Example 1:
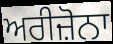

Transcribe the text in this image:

ਅਰੀਜ਼ੋਨਾ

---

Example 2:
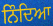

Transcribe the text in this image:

ਨਿੰਦਿਆ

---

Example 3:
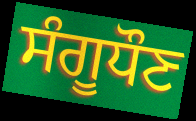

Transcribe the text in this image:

ਸੰਗੂਧੌਣ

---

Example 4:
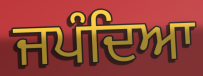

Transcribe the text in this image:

ਜਪੰਦਿਆ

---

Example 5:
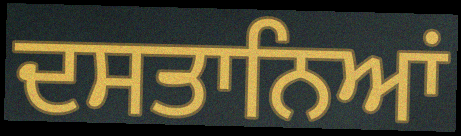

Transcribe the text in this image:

ਦਸਤਾਨਿਆਂ